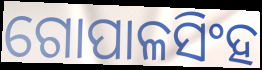
ଗୋପାଳସିଂହ